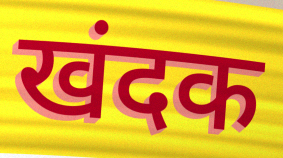
खंदक